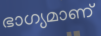
ഭാഗ്യമാണ്